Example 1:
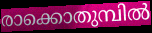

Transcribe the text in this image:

രാക്കൊതുമ്പിൽ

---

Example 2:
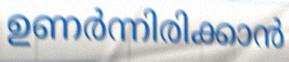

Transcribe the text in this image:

ഉണർന്നിരിക്കാൻ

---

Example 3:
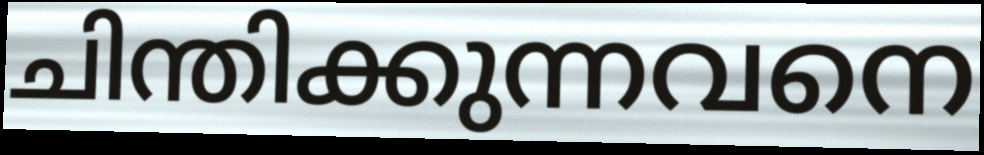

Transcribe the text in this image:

ചിന്തിക്കുന്നവനെ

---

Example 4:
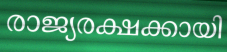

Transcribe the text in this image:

രാജ്യരക്ഷക്കായി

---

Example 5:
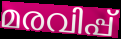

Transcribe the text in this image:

മരവിപ്പ്